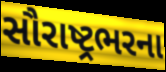
સૌરાષ્ટ્રભરના